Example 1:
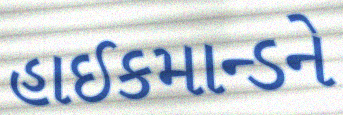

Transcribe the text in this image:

હાઈકમાન્ડને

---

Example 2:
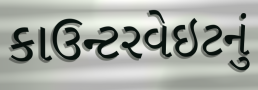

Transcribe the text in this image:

કાઉન્ટરવેઇટનું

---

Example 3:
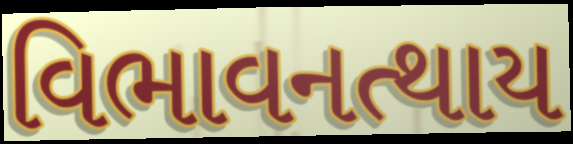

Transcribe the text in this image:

વિભાવનત્થાય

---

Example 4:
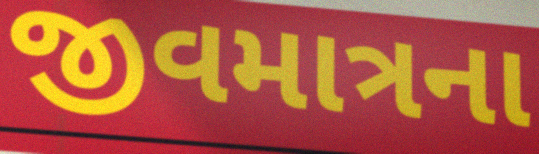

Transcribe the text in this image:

જીવમાત્રના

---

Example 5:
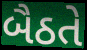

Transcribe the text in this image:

બૈઠતે